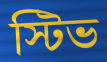
স্টিভ